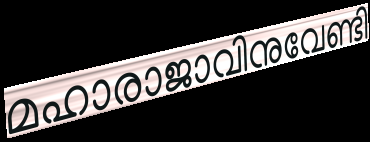
മഹാരാജാവിനുവേണ്ടി